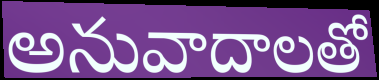
అనువాదాలతో